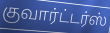
குவார்ட்டர்ஸ்